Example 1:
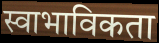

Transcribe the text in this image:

स्वाभाविकता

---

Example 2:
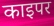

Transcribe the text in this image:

काइपर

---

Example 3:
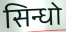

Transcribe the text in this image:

सिन्धो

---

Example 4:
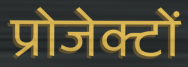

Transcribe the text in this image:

प्रोजेक्टों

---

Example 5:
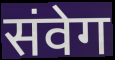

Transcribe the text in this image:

संवेग